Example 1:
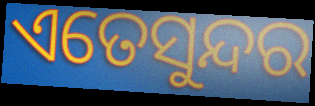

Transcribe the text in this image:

ଏତେସୁନ୍ଦର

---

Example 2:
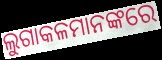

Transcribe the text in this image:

ଲୁଗାକଳମାନଙ୍କରେ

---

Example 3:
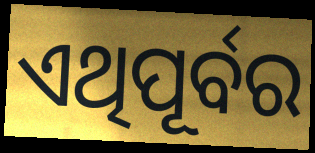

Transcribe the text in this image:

ଏଥିପୂର୍ବର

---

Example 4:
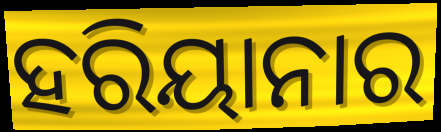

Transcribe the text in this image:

ହରିୟାନାର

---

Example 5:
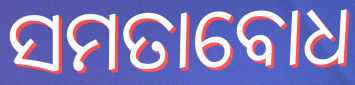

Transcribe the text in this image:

ସମତାବୋଧ